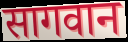
सागवान